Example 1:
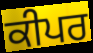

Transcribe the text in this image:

ਕੀਪਰ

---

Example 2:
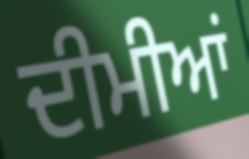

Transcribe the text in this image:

ਦੀਮੀਆਂ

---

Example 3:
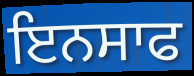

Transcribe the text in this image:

ਇਨਸਾਫ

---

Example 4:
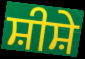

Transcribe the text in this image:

ਸ਼ੀਸ਼ੇ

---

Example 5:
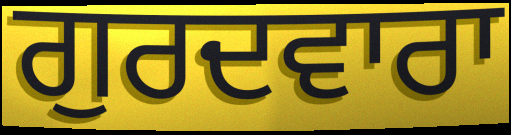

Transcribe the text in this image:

ਗੁਰਦਵਾਰਾ